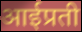
आईप्रती